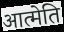
आत्मेति